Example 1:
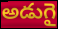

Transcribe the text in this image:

అడుగై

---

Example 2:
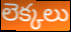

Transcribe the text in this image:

లెక్కలు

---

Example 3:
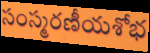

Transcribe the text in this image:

సంస్మరణీయశోభ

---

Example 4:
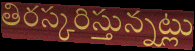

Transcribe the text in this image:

తిరస్కరిస్తున్నట్లు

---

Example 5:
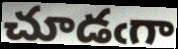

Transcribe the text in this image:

చూడఁగా